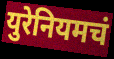
युरेनियमचं